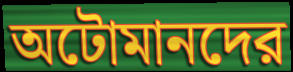
অটোমানদের